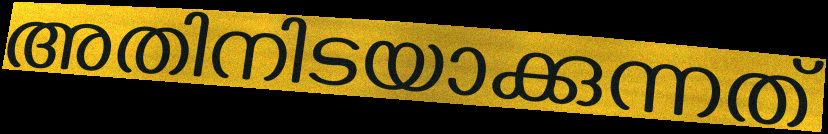
അതിനിടയാക്കുന്നത്